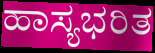
ಹಾಸ್ಯಭರಿತ